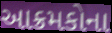
આક્રમકોના